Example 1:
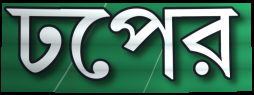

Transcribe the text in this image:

ঢপের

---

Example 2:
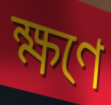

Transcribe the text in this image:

ক্ষণে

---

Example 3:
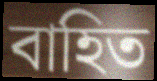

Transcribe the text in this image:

বাহিত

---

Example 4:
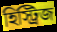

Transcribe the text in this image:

হিস্ট্রিজ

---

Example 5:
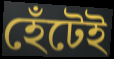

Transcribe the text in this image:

হেঁটেই